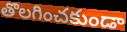
తొలగించకుండా